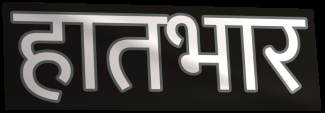
हातभार